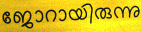
ജോറായിരുന്നു